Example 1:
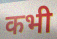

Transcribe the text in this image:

कभी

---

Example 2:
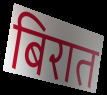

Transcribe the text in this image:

बिरात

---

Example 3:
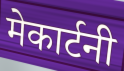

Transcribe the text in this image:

मेकार्टनी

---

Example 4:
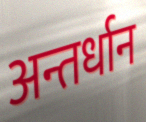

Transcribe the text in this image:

अन्तर्धान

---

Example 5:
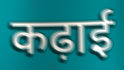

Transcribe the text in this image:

कढ़ाई